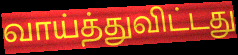
வாய்த்துவிட்டது